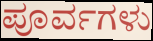
ಪೂರ್ವಗಳು